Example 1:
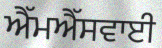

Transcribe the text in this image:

ਐੱਮਐੱਸਵਾਈ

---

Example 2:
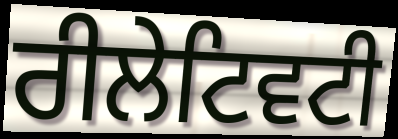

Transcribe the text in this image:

ਰੀਲੇਟਿਵਟੀ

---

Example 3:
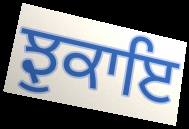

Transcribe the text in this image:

ਝੁਕਾਇ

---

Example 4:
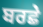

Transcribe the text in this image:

ਬਰਛੇ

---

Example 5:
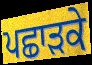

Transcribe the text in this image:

ਪਛਾੜਕੇ